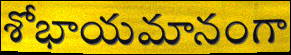
శోభాయమానంగా